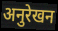
अनुरेखन